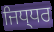
ਜਿਧ੍ਧਰ